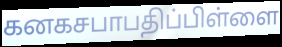
கனகசபாபதிப்பிள்ளை